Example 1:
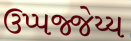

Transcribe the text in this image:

ઉપ્પજ્જેય્ય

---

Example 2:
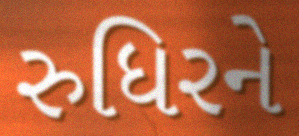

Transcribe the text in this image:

રુધિરને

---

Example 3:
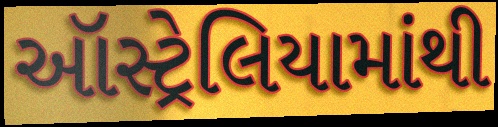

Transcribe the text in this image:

ઑસ્ટ્રેલિયામાંથી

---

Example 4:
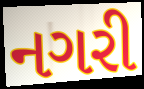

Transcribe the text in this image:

નગરી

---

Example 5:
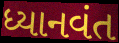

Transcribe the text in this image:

ધ્યાનવંત